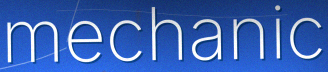
mechanic